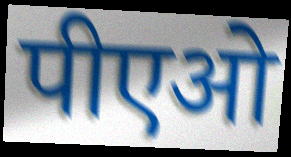
पीएओ